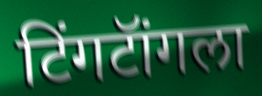
टिंगटॉंगला